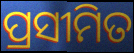
ପ୍ରସୀମିତ